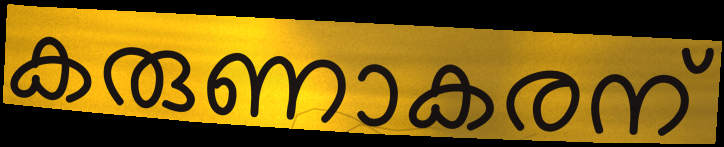
കരുണാകരന്